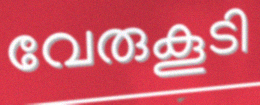
വേരുകൂടി